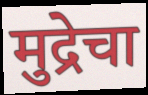
मुद्रेचा